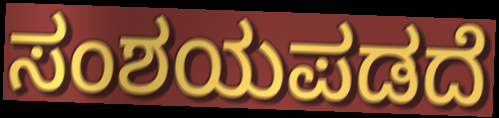
ಸಂಶಯಪಡದೆ